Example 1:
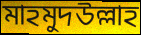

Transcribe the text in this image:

মাহমুদউল্লাহ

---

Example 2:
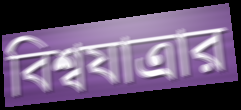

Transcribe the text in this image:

বিশ্বযাত্রার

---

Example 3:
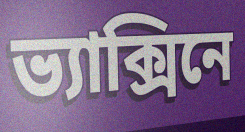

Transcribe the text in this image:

ভ্যাক্সিনে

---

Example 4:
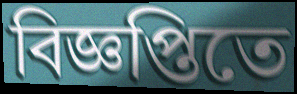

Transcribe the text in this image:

বিজ্ঞপ্তিতে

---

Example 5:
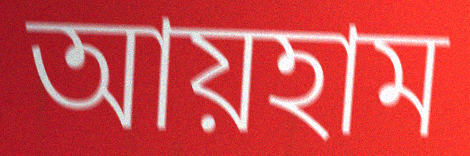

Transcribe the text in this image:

আয়হাম